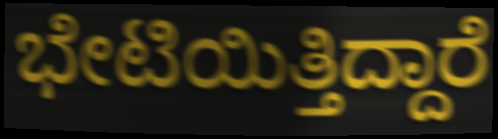
ಭೇಟಿಯಿತ್ತಿದ್ದಾರೆ